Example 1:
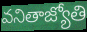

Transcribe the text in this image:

వనితాజ్యోతి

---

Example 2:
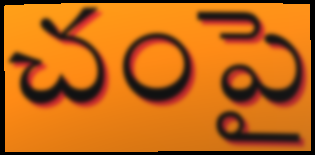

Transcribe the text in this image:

చంపై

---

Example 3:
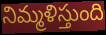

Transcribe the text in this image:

నిమ్మళిస్తుంది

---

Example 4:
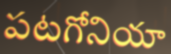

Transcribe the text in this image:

పటగోనియా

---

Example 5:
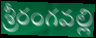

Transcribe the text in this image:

శ్రీరంగవల్లి